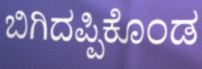
ಬಿಗಿದಪ್ಪಿಕೊಂಡ